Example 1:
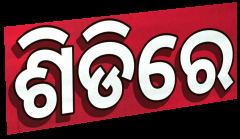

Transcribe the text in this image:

ଶିଡିରେ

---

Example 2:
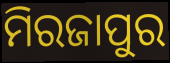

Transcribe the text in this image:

ମିରଜାପୁର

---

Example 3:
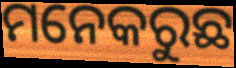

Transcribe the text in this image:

ମନେକରୁଛ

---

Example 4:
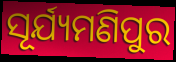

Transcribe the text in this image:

ସୂର୍ଯ୍ୟମଣିପୁର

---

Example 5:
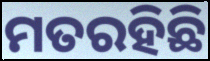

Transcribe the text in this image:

ମତରହିଛି